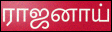
ராஜனாய்